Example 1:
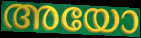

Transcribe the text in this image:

അയോ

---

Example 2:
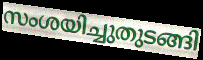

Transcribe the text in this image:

സംശയിച്ചുതുടങ്ങി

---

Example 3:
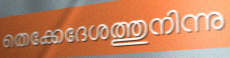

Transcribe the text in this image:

തെക്കേദേശത്തുനിന്നു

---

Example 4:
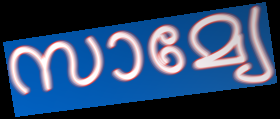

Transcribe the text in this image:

സാമ്യേ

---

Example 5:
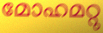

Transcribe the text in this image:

മോഹമറ്റു